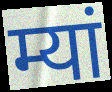
म्यां